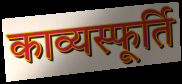
काव्यस्फूर्ति